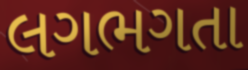
લગભગતા